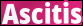
Ascitis